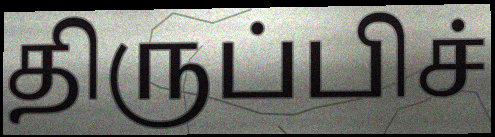
திருப்பிச்